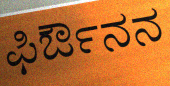
ಫಿರ್ಔನನ